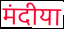
मंदीया